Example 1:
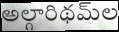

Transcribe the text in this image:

అల్గారిథమ్‌ల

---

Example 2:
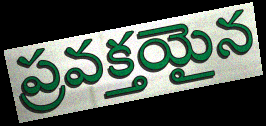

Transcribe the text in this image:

ప్రవక్తయైన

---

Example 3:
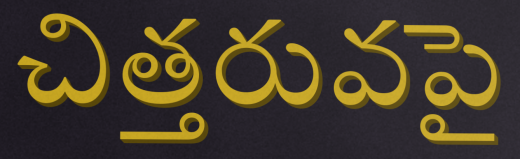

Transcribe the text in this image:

చిత్తరువపై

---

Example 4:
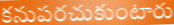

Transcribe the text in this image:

కనుపరచుకుంటారు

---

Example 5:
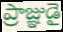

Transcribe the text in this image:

ప్రాజ్ఞుడై